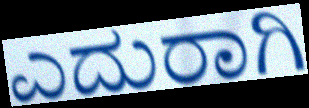
ಎದುರಾಗಿ